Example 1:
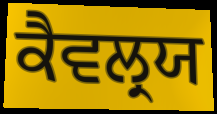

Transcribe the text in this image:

ਕੈਵਲ੍ਰਯ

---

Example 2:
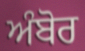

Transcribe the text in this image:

ਅੰਬੋਰ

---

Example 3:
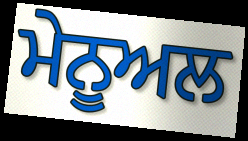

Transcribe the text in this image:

ਮੇਨੂਅਲ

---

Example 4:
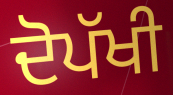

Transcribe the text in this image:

ਦੋਪੱਖੀ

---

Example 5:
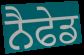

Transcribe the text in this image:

ਨੈਫੇਡ